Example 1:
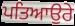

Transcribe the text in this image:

ਪਤਿਆਉਰੇ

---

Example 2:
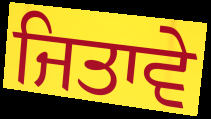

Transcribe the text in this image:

ਜਿਤਾਵੇ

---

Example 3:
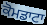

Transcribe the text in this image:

ਕੋਮਡਾਟਾ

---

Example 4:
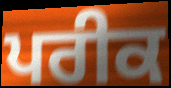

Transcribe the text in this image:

ਪਰੀਕ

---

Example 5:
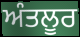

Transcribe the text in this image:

ਅੰਤਲੂਰ